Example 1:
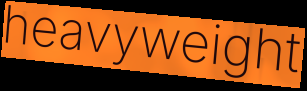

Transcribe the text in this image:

heavyweight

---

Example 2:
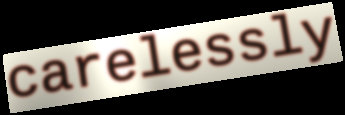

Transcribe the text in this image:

carelessly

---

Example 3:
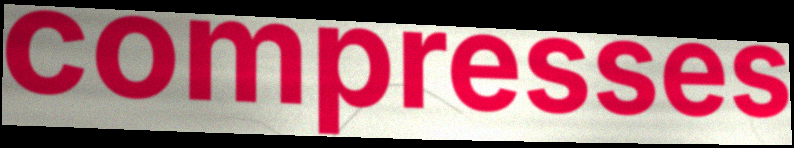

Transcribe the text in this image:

compresses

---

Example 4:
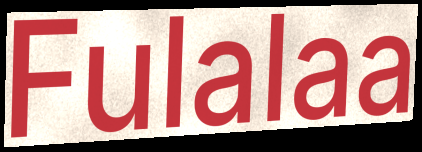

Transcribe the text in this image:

Fulalaa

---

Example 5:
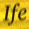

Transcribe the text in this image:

Ife